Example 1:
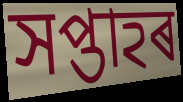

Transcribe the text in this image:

সপ্তাহৰ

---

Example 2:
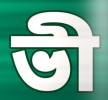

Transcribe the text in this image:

ভী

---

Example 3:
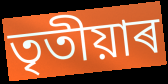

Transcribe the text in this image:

তৃতীয়াৰ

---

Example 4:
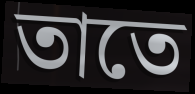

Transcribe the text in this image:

তাতে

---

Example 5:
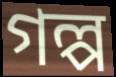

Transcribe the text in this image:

গল্প